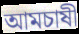
আমচাষী